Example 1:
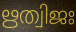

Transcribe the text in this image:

ഋത്വിജഃ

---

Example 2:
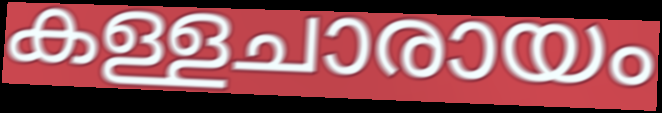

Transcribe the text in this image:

കള്ളചാരായം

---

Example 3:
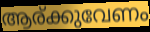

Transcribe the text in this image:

ആര്ക്കുവേണം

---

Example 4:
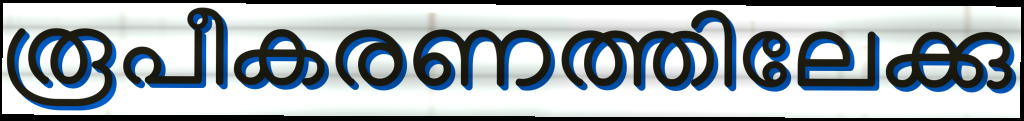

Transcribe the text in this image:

രൂപീകരണത്തിലേക്കു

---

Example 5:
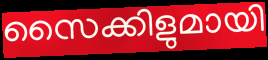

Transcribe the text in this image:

സൈക്കിളുമായി